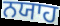
ਨਯਾਹ